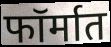
फॉर्मात